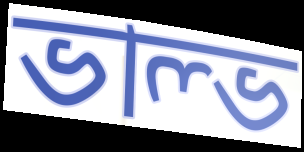
ভাল্ভ